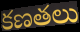
కణతలు